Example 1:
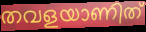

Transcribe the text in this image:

തവളയാണിത്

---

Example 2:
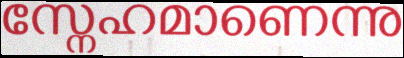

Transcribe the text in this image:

സ്നേഹമാണെന്നു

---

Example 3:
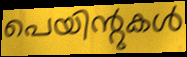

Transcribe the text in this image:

പെയിന്റുകൾ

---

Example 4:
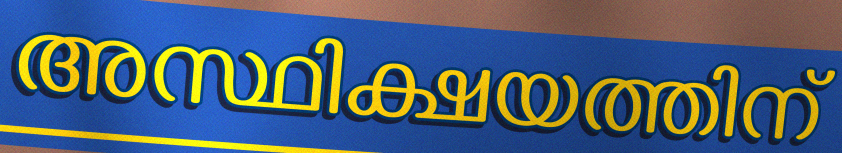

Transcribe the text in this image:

അസ്ഥിക്ഷയത്തിന്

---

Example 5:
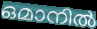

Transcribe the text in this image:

ഒമാനിൽ